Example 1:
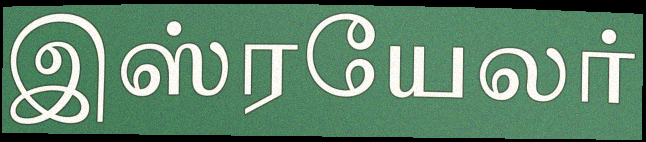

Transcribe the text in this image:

இஸ்ரயேலர்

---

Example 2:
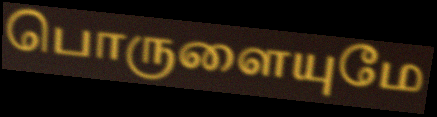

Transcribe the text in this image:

பொருளையுமே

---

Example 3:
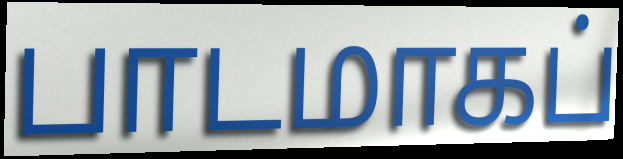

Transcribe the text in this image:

பாடமாகப்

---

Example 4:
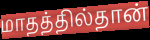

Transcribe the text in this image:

மாதத்தில்தான்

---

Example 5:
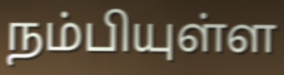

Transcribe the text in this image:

நம்பியுள்ள